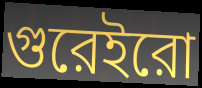
গুরেইরো